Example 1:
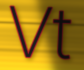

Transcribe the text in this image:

Vt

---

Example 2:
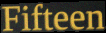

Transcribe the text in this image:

Fifteen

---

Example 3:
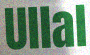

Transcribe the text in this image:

Ullal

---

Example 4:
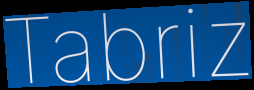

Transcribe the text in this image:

Tabriz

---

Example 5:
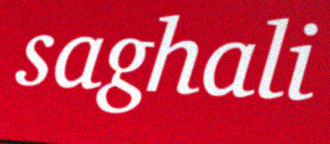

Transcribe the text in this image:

saghali